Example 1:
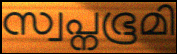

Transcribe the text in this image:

സ്വപ്നഭൂമി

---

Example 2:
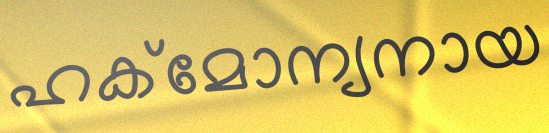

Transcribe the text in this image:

ഹക്മോന്യനായ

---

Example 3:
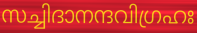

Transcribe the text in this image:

സച്ചിദാനന്ദവിഗ്രഹഃ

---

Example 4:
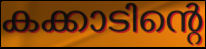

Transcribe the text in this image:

കക്കാടിന്റെ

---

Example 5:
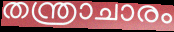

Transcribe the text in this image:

തന്ത്രാചാരം